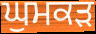
ਘੁਮਕੜ